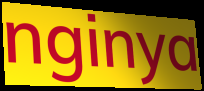
nginya